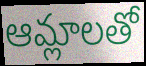
ఆమ్లాలతో